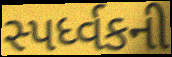
સ્પર્ધ્વકની